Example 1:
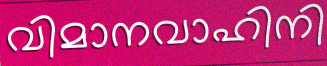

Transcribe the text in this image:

വിമാനവാഹിനി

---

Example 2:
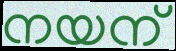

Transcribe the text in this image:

നയന്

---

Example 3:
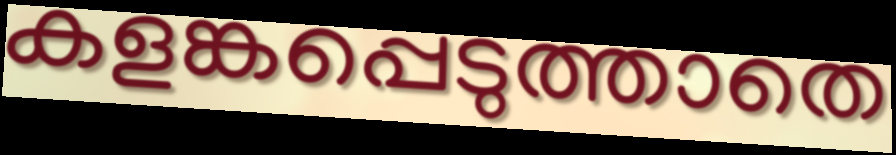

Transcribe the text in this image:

കളങ്കപ്പെടുത്താതെ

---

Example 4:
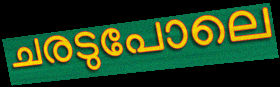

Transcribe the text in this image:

ചരടുപോലെ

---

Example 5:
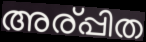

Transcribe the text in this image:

അര്പ്പിത